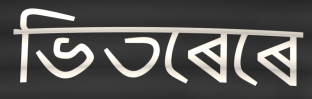
ভিতৰেৰে